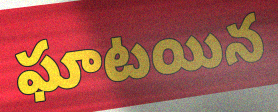
ఘాటయిన